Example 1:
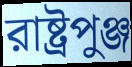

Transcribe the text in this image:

রাষ্ট্রপুঞ্জ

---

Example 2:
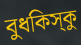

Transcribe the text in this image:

বুধকিস্‌কু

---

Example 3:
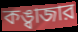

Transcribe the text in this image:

কঙ্বাজার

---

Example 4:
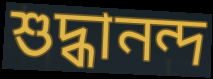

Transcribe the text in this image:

শুদ্ধানন্দ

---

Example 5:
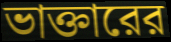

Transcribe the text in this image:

ভাক্তারের